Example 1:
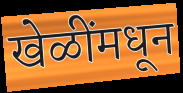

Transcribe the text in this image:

खेळींमधून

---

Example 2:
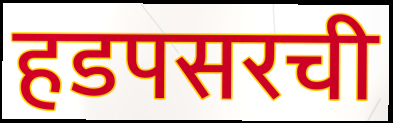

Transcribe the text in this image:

हडपसरची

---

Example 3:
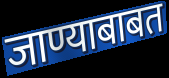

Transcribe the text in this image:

जाण्याबाबत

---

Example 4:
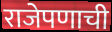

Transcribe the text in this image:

राजेपणाची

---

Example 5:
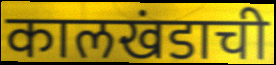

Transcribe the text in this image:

कालखंडाची